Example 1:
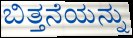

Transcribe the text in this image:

ಬಿತ್ತನೆಯನ್ನು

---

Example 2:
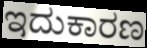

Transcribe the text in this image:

ಇದುಕಾರಣ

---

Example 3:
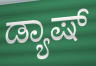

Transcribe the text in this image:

ಡ್ಯಾಷ್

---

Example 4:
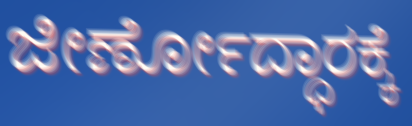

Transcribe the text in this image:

ಜೀರ್ಣೋದ್ಧಾರಕ್ಕೆ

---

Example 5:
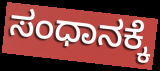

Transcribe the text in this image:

ಸಂಧಾನಕ್ಕೆ